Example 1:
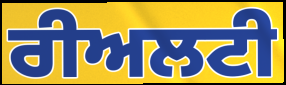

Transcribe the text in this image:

ਰੀਅਲਟੀ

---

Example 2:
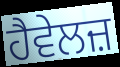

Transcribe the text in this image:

ਹੈਵੇਲਜ਼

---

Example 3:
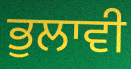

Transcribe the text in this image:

ਭੁਲਾਵੀ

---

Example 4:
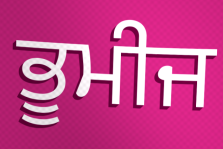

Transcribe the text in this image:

ਭੂਮੀਜ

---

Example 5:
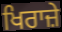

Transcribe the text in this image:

ਖਿਰਾਜ਼ੇ